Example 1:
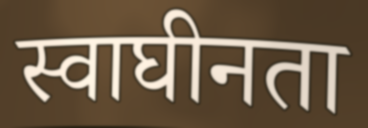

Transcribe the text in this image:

स्वाघीनता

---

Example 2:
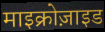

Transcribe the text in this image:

माइक्रोज़ाइड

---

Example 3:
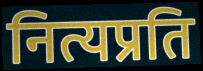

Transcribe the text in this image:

नित्यप्रति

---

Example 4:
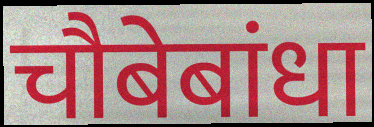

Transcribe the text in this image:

चौबेबांधा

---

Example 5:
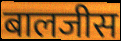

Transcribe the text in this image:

बालजीस